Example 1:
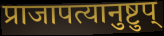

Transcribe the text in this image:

प्राजापत्यानुष्टुप्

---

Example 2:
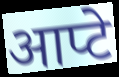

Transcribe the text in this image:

आप्टे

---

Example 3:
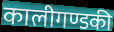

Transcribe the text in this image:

कालीगण्डकी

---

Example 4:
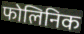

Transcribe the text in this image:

फोलिनिक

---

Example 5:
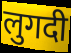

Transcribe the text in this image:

लुगदी